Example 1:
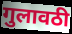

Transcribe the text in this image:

गुलावठी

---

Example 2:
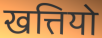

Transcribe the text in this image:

खत्तियो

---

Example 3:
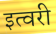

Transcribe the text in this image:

इत्वरी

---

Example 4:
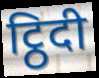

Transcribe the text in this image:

ट्ठिदी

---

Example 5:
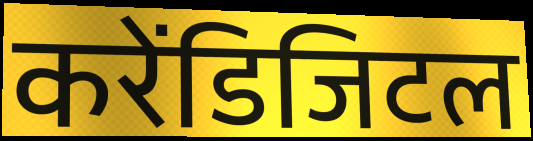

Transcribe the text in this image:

करेंडिजिटल